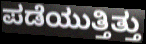
ಪಡೆಯುತ್ತಿತ್ತು